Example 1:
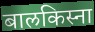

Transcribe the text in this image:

बालकिस्ना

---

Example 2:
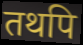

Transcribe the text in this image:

तथपि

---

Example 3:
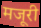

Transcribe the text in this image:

मजूरी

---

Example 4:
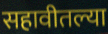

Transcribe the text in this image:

सहावीतल्या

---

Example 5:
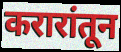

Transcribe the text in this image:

करारांतून